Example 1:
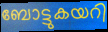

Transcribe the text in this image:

ബോട്ടുകയറി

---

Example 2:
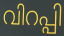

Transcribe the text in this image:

വിറപ്പി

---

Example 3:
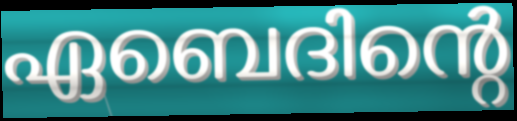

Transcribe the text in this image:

ഏബെദിന്റെ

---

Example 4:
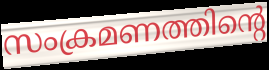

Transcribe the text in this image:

സംക്രമണത്തിന്റെ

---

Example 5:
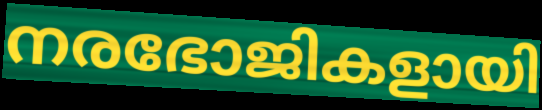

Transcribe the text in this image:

നരഭോജികളായി